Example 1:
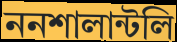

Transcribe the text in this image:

ননশালান্টলি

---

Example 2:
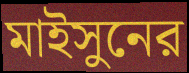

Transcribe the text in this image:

মাইসুনের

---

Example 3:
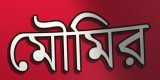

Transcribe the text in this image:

মৌমির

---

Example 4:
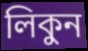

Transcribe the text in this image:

লিকুন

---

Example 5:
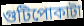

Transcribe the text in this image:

গুটিপোকাটা